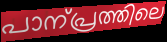
പാന്പ്രത്തിലെ